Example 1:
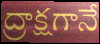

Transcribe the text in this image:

ద్రాక్షగానే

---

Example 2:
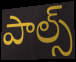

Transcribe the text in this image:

పాల్స్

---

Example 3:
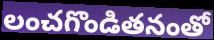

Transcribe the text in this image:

లంచగొండితనంతో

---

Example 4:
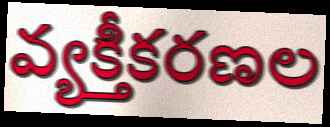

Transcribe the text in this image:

వ్యక్తీకరణల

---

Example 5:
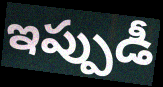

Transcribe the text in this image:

ఇప్పుడీ